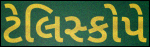
ટેલિસ્કોપે